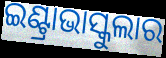
ଇଣ୍ଟ୍ରାଭାସ୍କୁଲାର